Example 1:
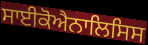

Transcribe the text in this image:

ਸਾਈਕੋਐਨਾਲਿਸਿਸ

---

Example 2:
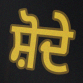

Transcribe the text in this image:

ਸ਼ੋਦੇ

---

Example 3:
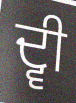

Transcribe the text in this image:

ਦ੍ਵੀ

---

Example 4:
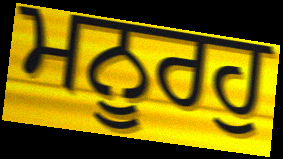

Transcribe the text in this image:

ਮਨੂਰਹੁ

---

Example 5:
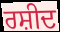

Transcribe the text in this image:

ਰਸ਼ੀਦ